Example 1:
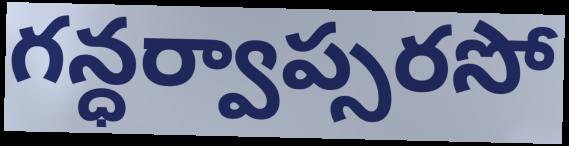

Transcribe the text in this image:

గన్ధర్వాప్సరసో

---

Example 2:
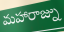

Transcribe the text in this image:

మహారాజ్ను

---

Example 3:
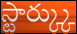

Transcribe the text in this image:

స్టార్క్కు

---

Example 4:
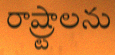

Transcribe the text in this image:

రాష్ర్టాలను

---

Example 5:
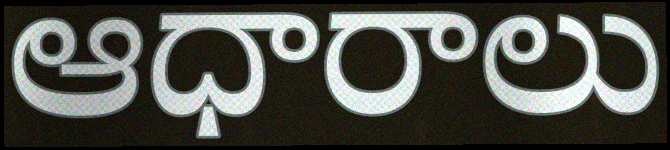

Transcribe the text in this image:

ఆధారాలు